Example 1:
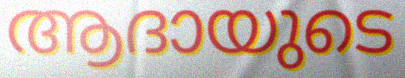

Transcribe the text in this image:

ആദായുടെ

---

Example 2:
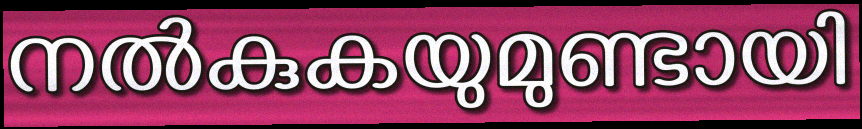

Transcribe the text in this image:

നൽകുകയുമുണ്ടായി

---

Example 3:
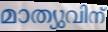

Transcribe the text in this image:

മാത്യുവിന്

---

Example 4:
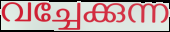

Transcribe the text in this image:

വച്ചേക്കുന്ന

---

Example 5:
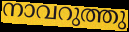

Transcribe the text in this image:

നാവറുത്തു